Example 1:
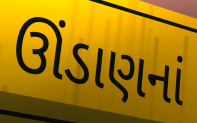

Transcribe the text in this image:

ઊંડાણનાં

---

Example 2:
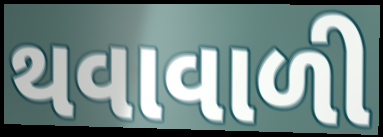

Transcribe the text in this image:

થવાવાળી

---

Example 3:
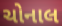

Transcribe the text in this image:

ચોનાલ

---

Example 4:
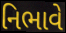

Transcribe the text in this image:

નિભાવે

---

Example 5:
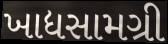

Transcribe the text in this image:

ખાદ્યસામગ્રી